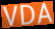
VDA